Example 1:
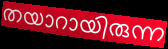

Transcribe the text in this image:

തയാറായിരുന്ന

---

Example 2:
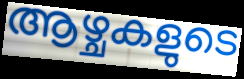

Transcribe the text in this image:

ആഴ്ചകളുടെ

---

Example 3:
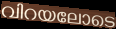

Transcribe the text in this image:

വിറയലോടെ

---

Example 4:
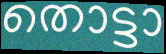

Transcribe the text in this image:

തൊട്ടാ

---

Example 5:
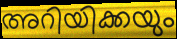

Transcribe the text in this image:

അറിയിക്കയും